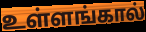
உள்ளங்கால்